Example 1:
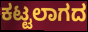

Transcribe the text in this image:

ಕಟ್ಟಲಾಗದ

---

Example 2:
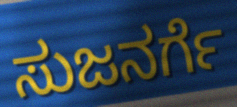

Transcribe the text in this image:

ಸುಜನರ್ಗೆ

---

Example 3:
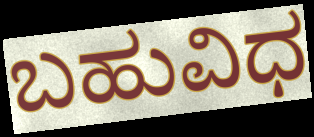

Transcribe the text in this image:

ಬಹುವಿಧ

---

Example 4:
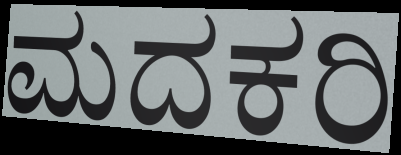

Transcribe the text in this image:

ಮದಕರಿ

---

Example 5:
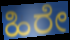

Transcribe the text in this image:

ಹಿರೇ